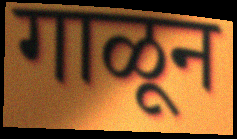
गाळून